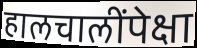
हालचालींपेक्षा